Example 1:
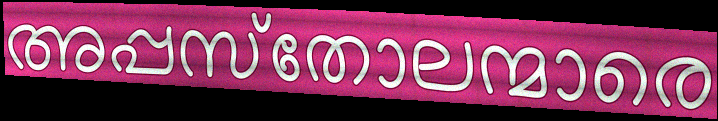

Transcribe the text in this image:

അപ്പസ്‌തോലന്മാരെ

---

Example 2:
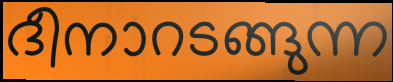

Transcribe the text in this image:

ദീനാറടങ്ങുന്ന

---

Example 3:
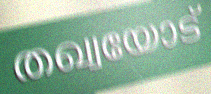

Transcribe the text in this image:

തഖ്വയോട്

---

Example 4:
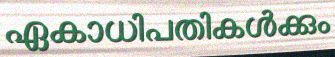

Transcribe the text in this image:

ഏകാധിപതികൾക്കും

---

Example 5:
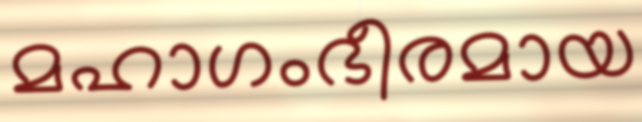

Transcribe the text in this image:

മഹാഗംഭീരമായ